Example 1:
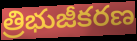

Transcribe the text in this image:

త్రిభుజీకరణ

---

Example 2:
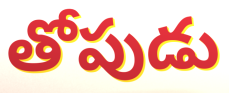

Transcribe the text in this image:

తోపుడు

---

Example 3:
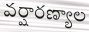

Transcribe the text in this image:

వర్షారణ్యాల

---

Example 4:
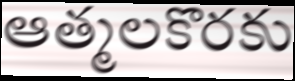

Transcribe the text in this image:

ఆత్మలకొరకు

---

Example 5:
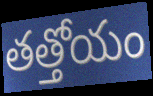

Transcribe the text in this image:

తత్తోయం